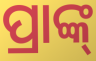
ପ୍ରାଙ୍କ୍